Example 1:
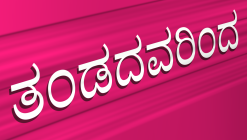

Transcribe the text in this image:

ತಂಡದವರಿಂದ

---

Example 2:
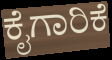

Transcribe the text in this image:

ಕೈಗಾರಿಕೆ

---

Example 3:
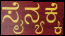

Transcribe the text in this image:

ಸೈನ್ಯಕ್ಕೆ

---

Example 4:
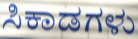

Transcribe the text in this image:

ಸಿಕಾಡಗಳು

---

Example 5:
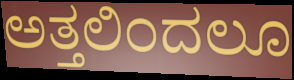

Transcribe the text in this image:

ಅತ್ತಲಿಂದಲೂ